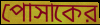
পোসাকের